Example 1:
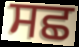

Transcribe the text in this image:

ਸਛ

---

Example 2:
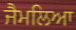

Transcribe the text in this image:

ਜੈਮਲਿਆ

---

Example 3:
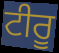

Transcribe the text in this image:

ਟੀਰੂ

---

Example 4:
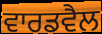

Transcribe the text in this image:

ਵਾਰਡਵੈਲ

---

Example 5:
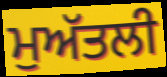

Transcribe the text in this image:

ਮੁਅੱਤਲੀ